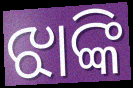
ଝାଙ୍କି